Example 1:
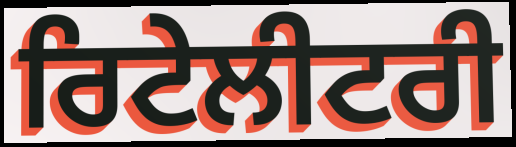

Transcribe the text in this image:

ਰਿਟੇਲੀਟਰੀ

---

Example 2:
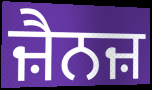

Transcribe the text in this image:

ਜ਼ੈਨਜ਼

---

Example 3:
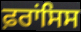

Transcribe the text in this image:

ਫ਼ਰਾਂਸਿਸ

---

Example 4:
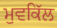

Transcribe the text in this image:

ਮੁਵਕਿੱਲ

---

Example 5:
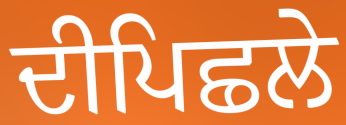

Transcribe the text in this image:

ਦੀਪਿਛਲੇ